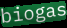
biogas